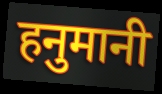
हनुमानी